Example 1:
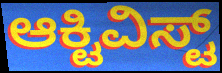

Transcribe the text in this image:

ಆಕ್ಟಿವಿಸ್ಟ್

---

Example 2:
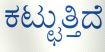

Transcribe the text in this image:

ಕಟ್ಟುತ್ತಿದೆ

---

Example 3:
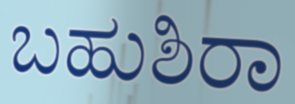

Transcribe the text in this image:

ಬಹುಶಿರಾ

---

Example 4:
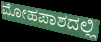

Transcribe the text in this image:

ಮೋಹಪಾಶದಲ್ಲಿ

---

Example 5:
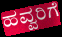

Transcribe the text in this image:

ಹವ್ವರಿಗೆ